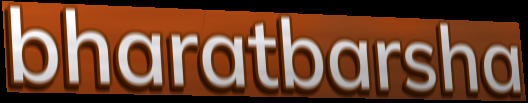
bharatbarsha